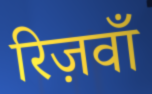
रिज़वाँ